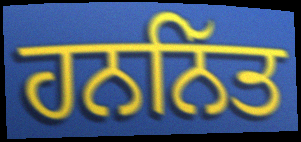
ਹਨਨਿੱਤ